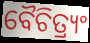
ବୈଚିତ୍ର୍ୟଂ